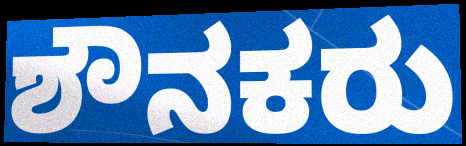
ಶೌನಕರು